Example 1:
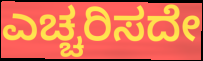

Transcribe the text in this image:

ಎಚ್ಚರಿಸದೇ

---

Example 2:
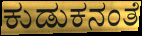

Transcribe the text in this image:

ಕುಡುಕನಂತೆ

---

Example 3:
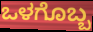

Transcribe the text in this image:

ಒಳಗೊಬ್ಬ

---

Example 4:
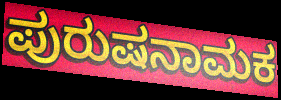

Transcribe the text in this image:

ಪುರುಷನಾಮಕ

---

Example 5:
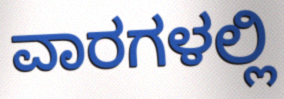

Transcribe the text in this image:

ವಾರಗಳಲ್ಲಿ